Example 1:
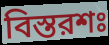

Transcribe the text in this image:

বিস্তরশঃ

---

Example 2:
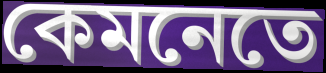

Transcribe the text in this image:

কেমনেতে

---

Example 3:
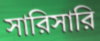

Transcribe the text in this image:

সারিসারি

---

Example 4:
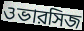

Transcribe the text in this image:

ওভারসিজ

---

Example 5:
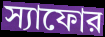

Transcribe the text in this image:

স্যাফোর